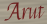
Arut